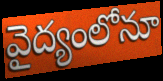
వైద్యంలోనూ